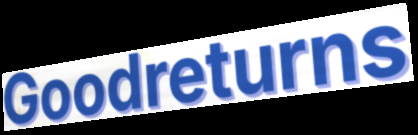
Goodreturns